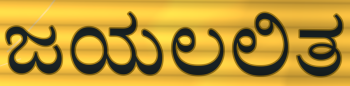
ಜಯಲಲಿತ